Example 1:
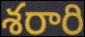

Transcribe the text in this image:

శరారి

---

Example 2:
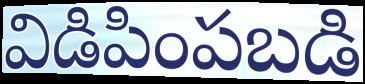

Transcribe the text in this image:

విడిపింపబడి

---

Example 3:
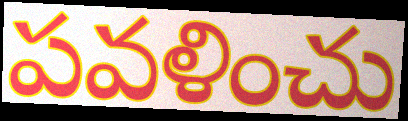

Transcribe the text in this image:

పవళించు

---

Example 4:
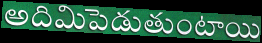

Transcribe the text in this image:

అదిమిపెడుతుంటాయి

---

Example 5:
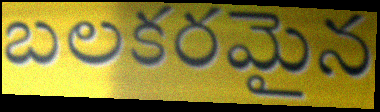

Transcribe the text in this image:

బలకరమైన